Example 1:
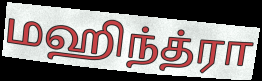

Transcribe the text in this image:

மஹிந்த்ரா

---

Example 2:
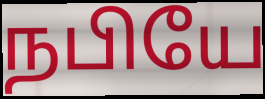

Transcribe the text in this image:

நபியே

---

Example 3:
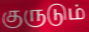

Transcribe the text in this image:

குருடும்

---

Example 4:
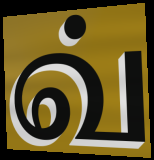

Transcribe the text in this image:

வ்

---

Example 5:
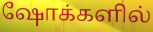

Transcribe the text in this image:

ஷோக்களில்